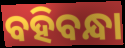
ବହିବନ୍ଧା